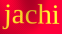
jachi